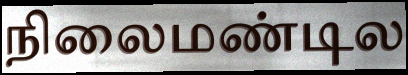
நிலைமண்டில